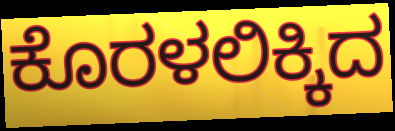
ಕೊರಳಲಿಕ್ಕಿದ